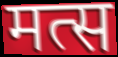
मत्स